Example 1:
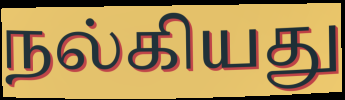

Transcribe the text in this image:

நல்கியது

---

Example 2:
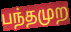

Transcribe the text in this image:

பந்தமுற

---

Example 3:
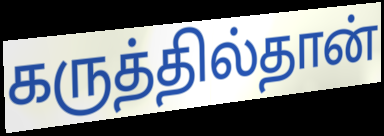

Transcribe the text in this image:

கருத்தில்தான்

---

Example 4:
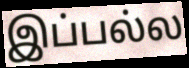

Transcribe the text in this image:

இப்பல்ல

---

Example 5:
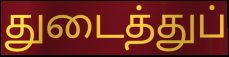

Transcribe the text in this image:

துடைத்துப்